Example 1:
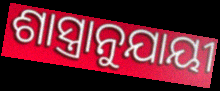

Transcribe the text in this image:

ଶାସ୍ତ୍ରାନୁଯାୟୀ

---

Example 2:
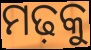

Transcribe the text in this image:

ମଢ଼କୁ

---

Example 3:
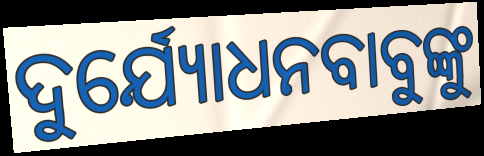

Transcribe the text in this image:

ଦୁର୍ଯ୍ୟୋଧନବାବୁଙ୍କୁ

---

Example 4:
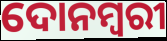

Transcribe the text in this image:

ଦୋନମ୍ବରୀ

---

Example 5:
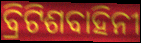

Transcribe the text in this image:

ବ୍ରିଟିଶବାହିନୀ